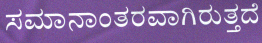
ಸಮಾನಾಂತರವಾಗಿರುತ್ತದೆ